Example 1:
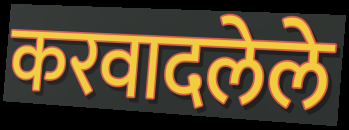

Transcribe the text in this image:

करवादलेले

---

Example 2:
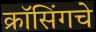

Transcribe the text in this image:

क्रॉसिंगचे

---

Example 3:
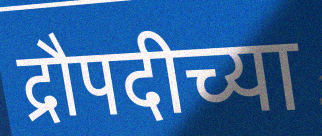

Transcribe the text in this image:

द्रौपदीच्या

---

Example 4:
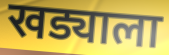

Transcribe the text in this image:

खड्याला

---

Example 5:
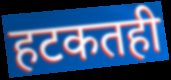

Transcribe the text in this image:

हटकतही